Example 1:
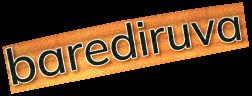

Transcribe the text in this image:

barediruva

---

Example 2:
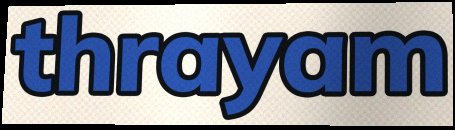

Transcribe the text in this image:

thrayam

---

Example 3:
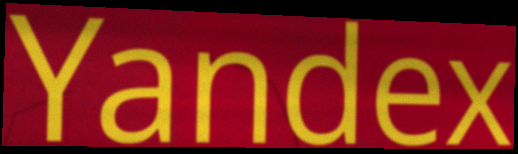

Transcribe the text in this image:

Yandex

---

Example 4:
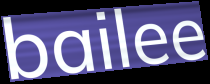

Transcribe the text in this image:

bailee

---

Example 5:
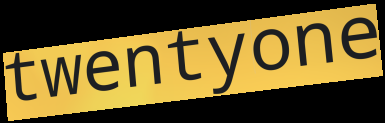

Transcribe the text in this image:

twentyone